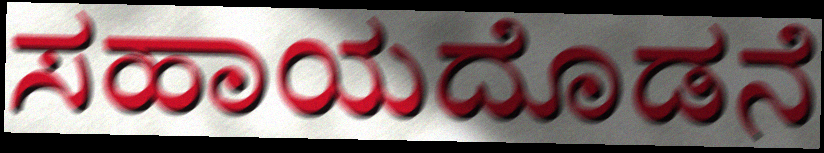
ಸಹಾಯದೊಡನೆ